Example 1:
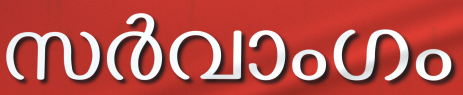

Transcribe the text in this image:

സർവാംഗം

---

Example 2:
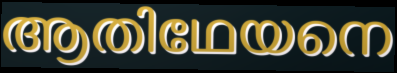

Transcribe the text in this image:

ആതിഥേയനെ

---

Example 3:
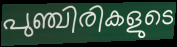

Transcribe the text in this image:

പുഞ്ചിരികളുടെ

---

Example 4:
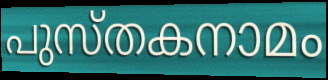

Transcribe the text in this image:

പുസ്തകനാമം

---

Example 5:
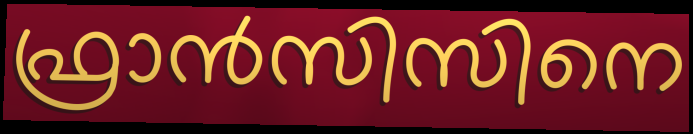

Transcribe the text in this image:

ഫ്രാൻസിസിനെ